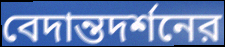
বেদান্তদর্শনের